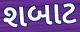
શબાટ